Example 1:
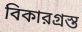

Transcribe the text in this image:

বিকারগ্রস্ত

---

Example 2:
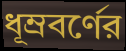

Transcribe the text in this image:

ধূম্রবর্ণের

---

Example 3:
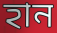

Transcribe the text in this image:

হান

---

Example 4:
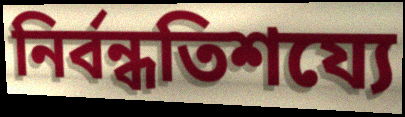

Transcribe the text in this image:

নির্বন্ধতিশয্যে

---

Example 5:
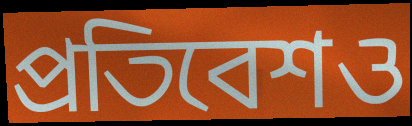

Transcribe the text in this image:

প্রতিবেশও